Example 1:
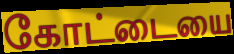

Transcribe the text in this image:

கோட்டையை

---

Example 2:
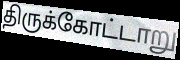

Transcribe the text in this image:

திருக்கோட்டாறு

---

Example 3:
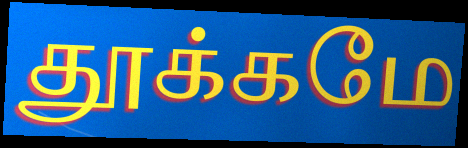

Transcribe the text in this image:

தூக்கமே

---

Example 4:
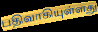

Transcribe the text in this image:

பதிவாகியுள்ளது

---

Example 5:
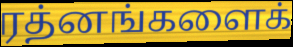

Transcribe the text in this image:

ரத்னங்களைக்